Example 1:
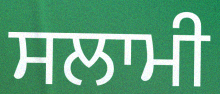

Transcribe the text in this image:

ਸਲਾਮੀ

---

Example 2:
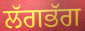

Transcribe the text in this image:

ਲੱਗਭੱਗ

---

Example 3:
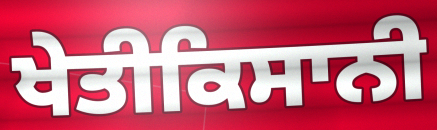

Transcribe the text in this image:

ਖੇਤੀਕਿਸਾਨੀ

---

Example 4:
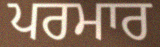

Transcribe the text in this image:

ਪਰਮਾਰ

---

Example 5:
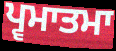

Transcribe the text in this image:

ਪ੍ਵਮਾਤਮਾ